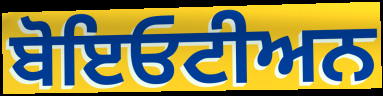
ਬੋਇਓਟੀਅਨ